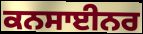
ਕਨਸਾਈਨਰ